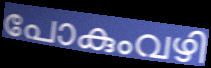
പോകുംവഴി